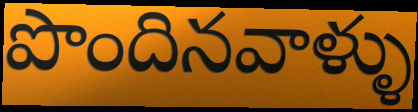
పొందినవాళ్ళు